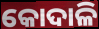
କୋଦାଳି